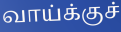
வாய்க்குச்